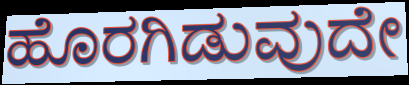
ಹೊರಗಿಡುವುದೇ